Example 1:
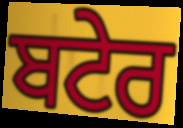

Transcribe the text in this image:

ਬਟੇਰ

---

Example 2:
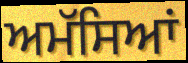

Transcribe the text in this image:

ਅਮੱਸਿਆਂ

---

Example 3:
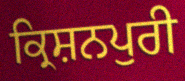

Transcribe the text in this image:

ਕ੍ਰਿਸ਼ਨਪੁਰੀ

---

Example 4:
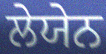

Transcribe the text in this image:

ਲੇਯੇਨ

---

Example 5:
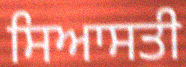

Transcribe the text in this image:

ਸਿਆਸਤੀ